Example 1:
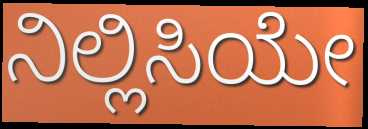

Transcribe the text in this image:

ನಿಲ್ಲಿಸಿಯೇ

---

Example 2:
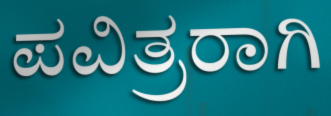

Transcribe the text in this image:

ಪವಿತ್ರರಾಗಿ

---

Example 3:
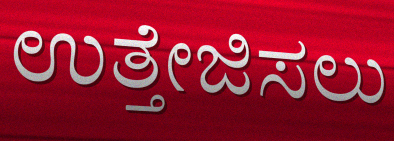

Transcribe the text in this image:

ಉತ್ತೇಜಿಸಲು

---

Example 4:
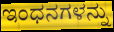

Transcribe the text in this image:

ಇಂಧನಗಳನ್ನು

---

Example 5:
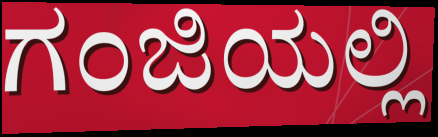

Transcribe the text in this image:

ಗಂಜಿಯಲ್ಲಿ